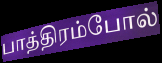
பாத்திரம்போல்